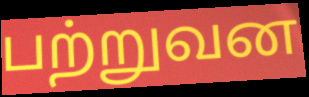
பற்றுவன